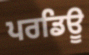
ਪਰਡਿਊ